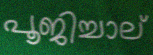
പൂജിച്ചാല്